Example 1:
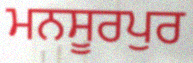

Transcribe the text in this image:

ਮਨਸੂਰਪੁਰ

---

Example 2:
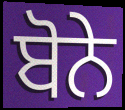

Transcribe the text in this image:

ਬੋਨੇ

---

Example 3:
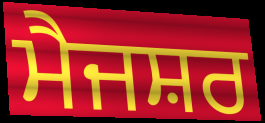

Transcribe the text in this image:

ਮੈਜਸ਼ਰ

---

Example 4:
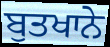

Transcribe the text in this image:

ਬੁਤਖਾਨੇ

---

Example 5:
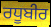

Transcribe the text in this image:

ਰਧੂਬੀਰ